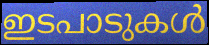
ഇടപാടുകൾ